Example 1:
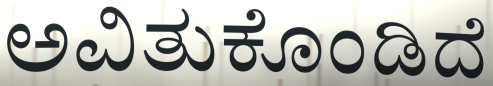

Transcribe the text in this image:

ಅವಿತುಕೊಂಡಿದೆ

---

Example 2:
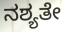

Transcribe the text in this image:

ನಶ್ಯತೇ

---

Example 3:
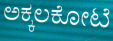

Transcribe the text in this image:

ಅಕ್ಕಲಕೋಟೆ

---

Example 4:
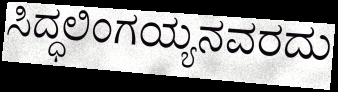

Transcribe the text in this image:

ಸಿದ್ಧಲಿಂಗಯ್ಯನವರದು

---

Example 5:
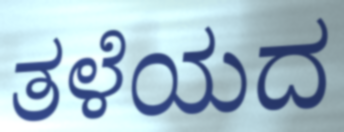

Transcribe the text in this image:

ತಳೆಯದ